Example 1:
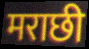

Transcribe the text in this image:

मराछी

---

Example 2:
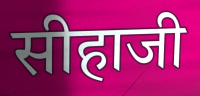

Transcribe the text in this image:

सीहाजी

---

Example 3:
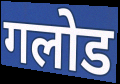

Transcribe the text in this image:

गलोड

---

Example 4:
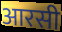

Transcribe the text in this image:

आरसी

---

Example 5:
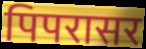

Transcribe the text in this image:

पिपरासर